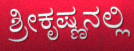
ಶ್ರೀಕೃಷ್ಣನಲ್ಲಿ